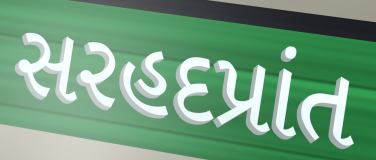
સરહદપ્રાંત